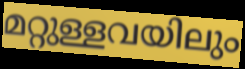
മറ്റുള്ളവയിലും